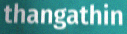
thangathin